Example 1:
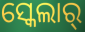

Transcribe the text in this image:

ସ୍କେଲାର୍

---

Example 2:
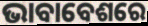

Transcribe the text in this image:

ଭାବାବେଶରେ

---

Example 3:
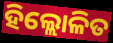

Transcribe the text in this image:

ହିଲ୍ଲୋଳିତ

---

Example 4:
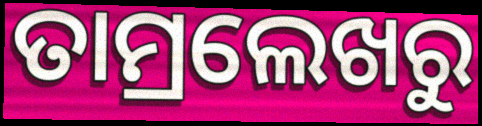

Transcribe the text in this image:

ତାମ୍ରଲେଖରୁ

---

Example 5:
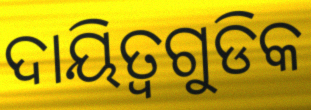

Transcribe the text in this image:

ଦାୟିତ୍ୱଗୁଡିକ